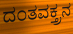
ದಂತವಕ್ತ್ರನ